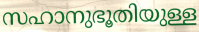
സഹാനുഭൂതിയുള്ള